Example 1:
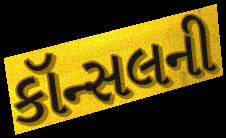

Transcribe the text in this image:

કૉન્સલની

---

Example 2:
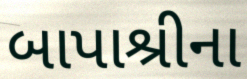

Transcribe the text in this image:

બાપાશ્રીના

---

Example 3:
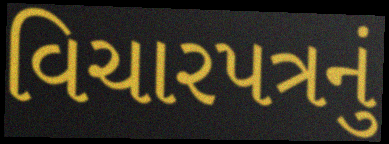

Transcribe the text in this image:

વિચારપત્રનું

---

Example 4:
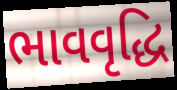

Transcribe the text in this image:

ભાવવૃદ્ધિ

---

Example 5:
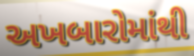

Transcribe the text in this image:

અખબારોમાંથી